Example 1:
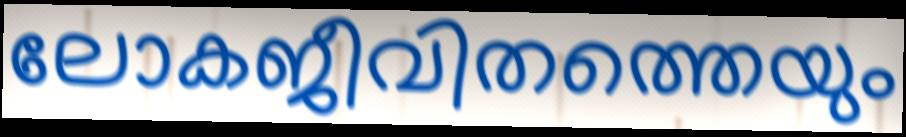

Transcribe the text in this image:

ലോകജീവിതത്തെയും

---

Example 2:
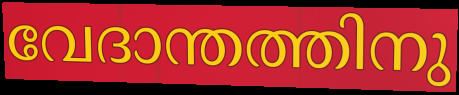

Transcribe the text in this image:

വേദാന്തത്തിനു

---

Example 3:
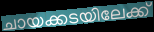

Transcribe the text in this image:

ചായക്കടയിലേക്ക്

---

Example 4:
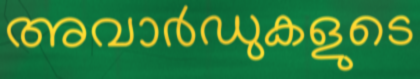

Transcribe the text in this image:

അവാർഡുകളുടെ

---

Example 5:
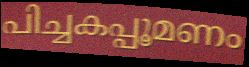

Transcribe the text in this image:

പിച്ചകപ്പൂമണം